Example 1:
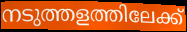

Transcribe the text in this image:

നടുത്തളത്തിലേക്ക്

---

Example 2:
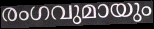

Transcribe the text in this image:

രംഗവുമായും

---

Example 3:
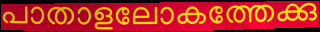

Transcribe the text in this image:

പാതാളലോകത്തേക്കു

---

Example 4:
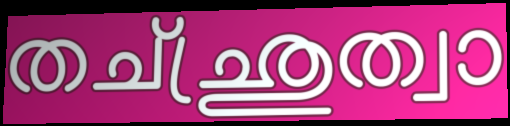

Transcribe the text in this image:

തച്ഛ്രുത്വാ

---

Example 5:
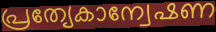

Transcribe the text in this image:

പ്രത്യേകാന്വേഷണ